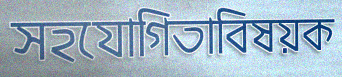
সহযোগিতাবিষয়ক